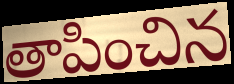
తాపించిన